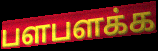
பளபளக்க